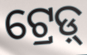
ଟ୍ରେଡ଼୍